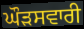
ਘੌੜਸਵਾਰੀ